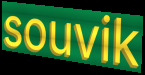
souvik